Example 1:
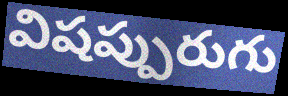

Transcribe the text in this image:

విషప్పురుగు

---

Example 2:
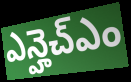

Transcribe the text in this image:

ఎన్హెచ్ఎం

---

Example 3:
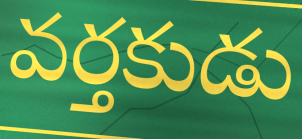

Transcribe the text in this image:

వర్తకుడు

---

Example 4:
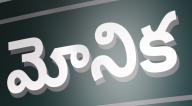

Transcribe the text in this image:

మోనిక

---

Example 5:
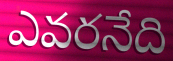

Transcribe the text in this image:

ఎవరనేది